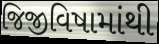
જિજીવિષામાંથી